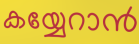
കയ്യേറാൻ